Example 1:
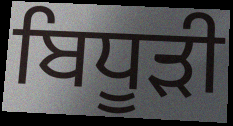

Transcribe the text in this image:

ਬਿਧੂੜੀ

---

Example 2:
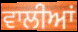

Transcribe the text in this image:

ਵਾਲੀਆਂ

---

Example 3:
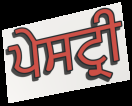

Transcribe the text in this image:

ਪੇਸਟ੍ਰੀ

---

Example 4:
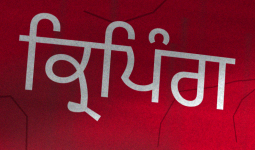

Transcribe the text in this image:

ਕ੍ਰਿਪਿੰਗ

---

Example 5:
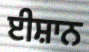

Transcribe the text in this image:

ਈਸ਼ਾਨ